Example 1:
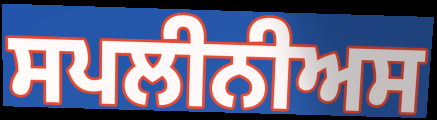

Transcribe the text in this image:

ਸਪਲੀਨੀਅਸ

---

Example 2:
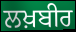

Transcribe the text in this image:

ਲਖ਼ਬੀਰ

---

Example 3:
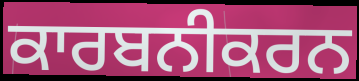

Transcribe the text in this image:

ਕਾਰਬਨੀਕਰਨ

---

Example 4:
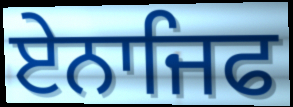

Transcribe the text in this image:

ਏਨਾਜਿਫ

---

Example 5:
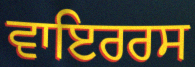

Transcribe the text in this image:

ਵਾਇਰਰਸ